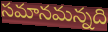
సమానమన్నది